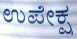
ಉಪೇಕ್ಷ